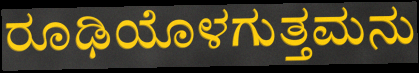
ರೂಢಿಯೊಳಗುತ್ತಮನು